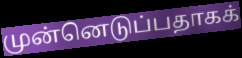
முன்னெடுப்பதாகக்